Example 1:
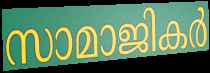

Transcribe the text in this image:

സാമാജികർ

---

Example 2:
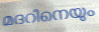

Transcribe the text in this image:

മദറിനെയും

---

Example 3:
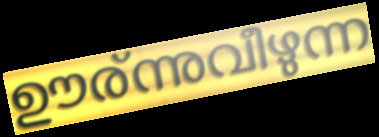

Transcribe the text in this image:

ഊര്ന്നുവീഴുന്ന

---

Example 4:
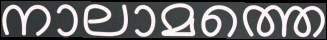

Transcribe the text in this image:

നാലാമത്തെ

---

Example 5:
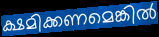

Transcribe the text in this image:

ക്ഷമിക്കണമെങ്കിൽ